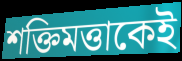
শক্তিমত্তাকেই